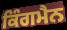
ਕਿੰਗਮੈਨ